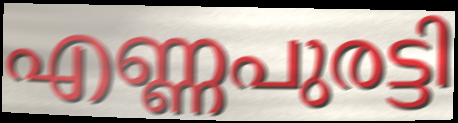
എണ്ണപുരട്ടി